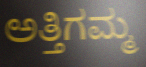
ಅತ್ತಿಗಮ್ಮ